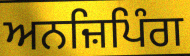
ਅਨਜ਼ਿਪਿੰਗ